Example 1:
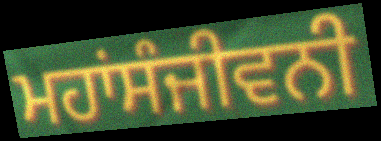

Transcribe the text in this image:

ਮਹਾਂਸੰਜੀਵਨੀ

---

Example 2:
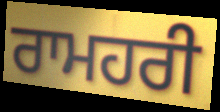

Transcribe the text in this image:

ਰਾਮਹਰੀ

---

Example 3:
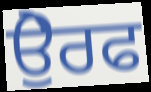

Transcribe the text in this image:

ਉੇਰਫ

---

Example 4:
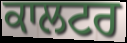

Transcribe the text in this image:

ਕਾਲਟਰ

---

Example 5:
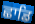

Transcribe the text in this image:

ਛਾਡਿ